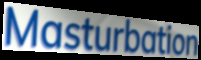
Masturbation